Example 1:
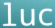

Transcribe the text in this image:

luc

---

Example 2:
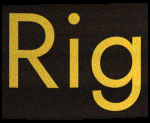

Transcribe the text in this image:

Rig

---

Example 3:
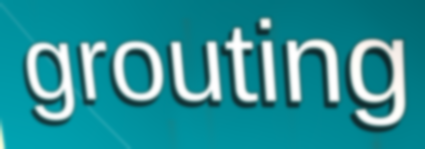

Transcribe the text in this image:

grouting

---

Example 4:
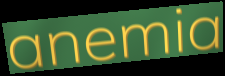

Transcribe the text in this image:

anemia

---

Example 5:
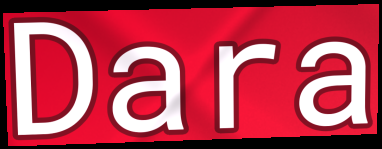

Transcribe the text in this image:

Dara